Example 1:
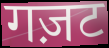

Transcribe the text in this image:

गज़ट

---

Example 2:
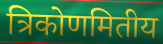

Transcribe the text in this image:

त्रिकोणमितीय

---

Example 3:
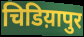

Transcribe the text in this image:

चिडिय़ापुर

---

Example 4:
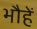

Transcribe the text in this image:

भौहें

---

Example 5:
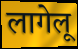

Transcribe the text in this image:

लागेलू